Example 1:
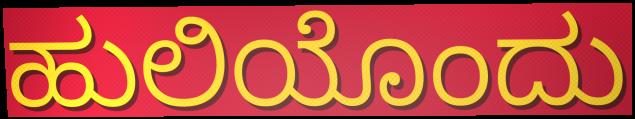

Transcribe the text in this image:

ಹುಲಿಯೊಂದು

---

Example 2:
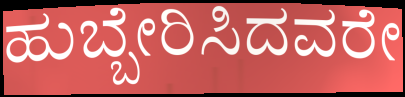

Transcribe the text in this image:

ಹುಬ್ಬೇರಿಸಿದವರೇ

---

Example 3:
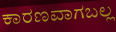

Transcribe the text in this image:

ಕಾರಣವಾಗಬಲ್ಲ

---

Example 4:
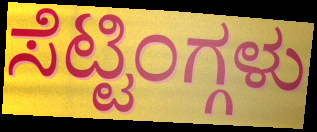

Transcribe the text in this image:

ಸೆಟ್ಟಿಂಗ್ಗಳು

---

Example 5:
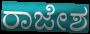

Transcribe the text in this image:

ರಾಜೇಶ